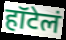
हॉटेलं